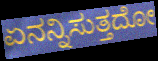
ಏನನ್ನಿಸುತ್ತದೋ